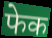
फेक